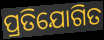
ପ୍ରତିଯୋଗିତ